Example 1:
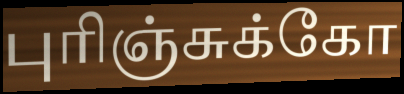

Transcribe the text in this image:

புரிஞ்சுக்கோ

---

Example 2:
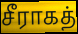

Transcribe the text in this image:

சீராகத்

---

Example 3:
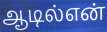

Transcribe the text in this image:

ஆடில்என்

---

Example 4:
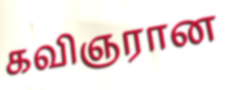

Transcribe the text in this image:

கவிஞரான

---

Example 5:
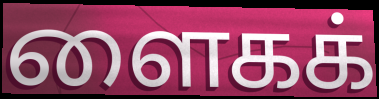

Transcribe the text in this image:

ளைகக்